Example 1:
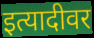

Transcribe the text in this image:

इत्यादीवर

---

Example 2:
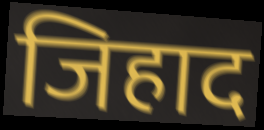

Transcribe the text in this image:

जिहाद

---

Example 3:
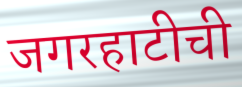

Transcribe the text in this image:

जगरहाटीची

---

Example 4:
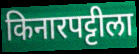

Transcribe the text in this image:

किनारपट्टीला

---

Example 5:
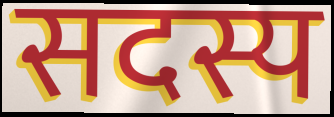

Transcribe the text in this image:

सदस्‍य